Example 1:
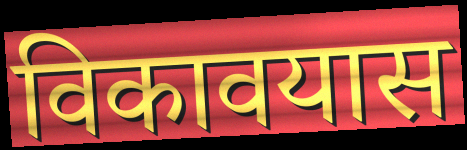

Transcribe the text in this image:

विकावयास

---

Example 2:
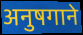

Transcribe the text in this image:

अनुषगाने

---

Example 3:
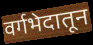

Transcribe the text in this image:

वर्गभेदातून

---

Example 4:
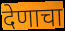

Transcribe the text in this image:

देणाचा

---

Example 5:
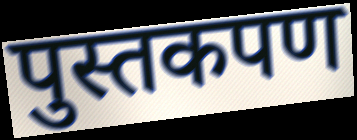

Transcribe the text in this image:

पुस्तकपण